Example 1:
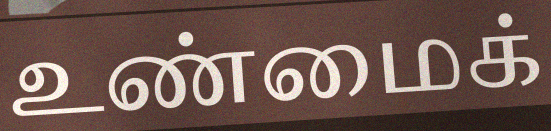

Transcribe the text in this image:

உண்மைக்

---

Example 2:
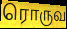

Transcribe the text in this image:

ரொருவ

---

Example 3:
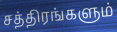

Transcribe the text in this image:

சத்திரங்களும்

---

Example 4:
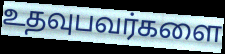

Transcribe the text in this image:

உதவுபவர்களை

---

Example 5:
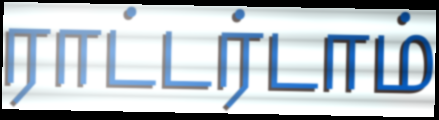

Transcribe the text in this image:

ராட்டர்டாம்